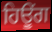
ਹਿਊੰਗ